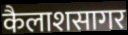
कैलाशसागर